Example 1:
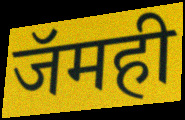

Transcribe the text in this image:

जॅमही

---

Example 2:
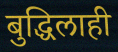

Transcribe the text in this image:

बुद्धिलाही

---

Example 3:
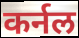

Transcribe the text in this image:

कर्नल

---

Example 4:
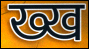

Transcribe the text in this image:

ख्ख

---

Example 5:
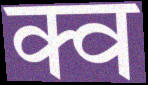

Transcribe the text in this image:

क्व